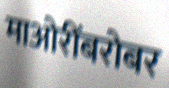
माओरींबरोबर